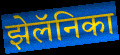
झेलॅनिका